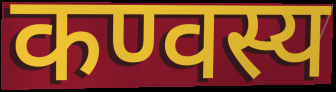
कण्वस्य